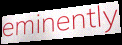
eminently